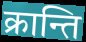
क्रान्ति